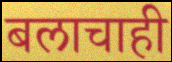
बलाचाही